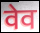
वेव